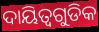
ଦାୟିତ୍ୱଗୁଡିକ